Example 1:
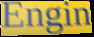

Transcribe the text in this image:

Engin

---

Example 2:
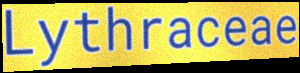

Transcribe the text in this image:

Lythraceae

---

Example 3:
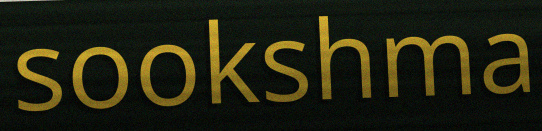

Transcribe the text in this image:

sookshma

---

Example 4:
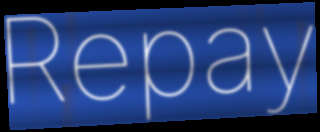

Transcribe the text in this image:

Repay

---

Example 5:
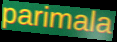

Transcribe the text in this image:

parimala